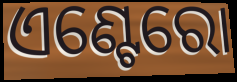
ଏଣ୍ଟେରୋ